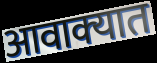
आवाक्‍यात